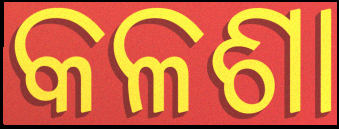
କଳଶା